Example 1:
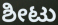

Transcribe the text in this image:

ಶೀಟು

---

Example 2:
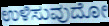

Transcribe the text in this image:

ಉಳಿಸುವುದೋ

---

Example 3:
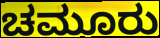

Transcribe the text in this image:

ಚಮೂರು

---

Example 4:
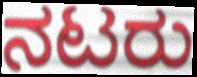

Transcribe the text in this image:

ನಟರು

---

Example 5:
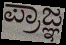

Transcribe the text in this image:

ಪ್ರಾಜ್ಞ